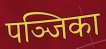
पञ्जिका